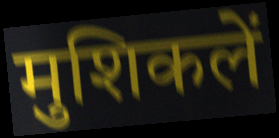
मुशिकलें